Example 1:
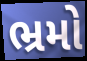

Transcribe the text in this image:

ભ્રમો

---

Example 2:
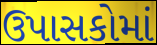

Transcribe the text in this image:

ઉપાસકોમાં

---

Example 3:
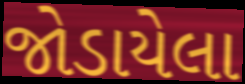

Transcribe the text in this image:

જોડાયેલા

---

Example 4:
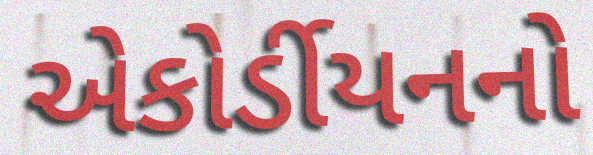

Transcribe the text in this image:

એકોર્ડીયનનો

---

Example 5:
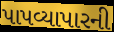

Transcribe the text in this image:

પાપવ્યાપારની